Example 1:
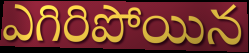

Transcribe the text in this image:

ఎగిరిపోయిన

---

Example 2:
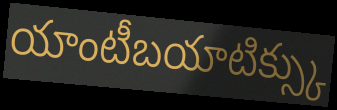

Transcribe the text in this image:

యాంటీబయాటిక్స్కు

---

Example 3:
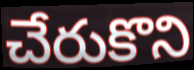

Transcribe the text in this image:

చేరుకొని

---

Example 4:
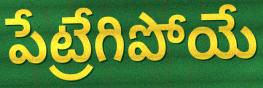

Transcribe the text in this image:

పేట్రేగిపోయే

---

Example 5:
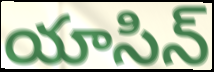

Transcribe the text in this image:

యాసిన్